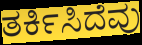
ತರ್ಕಿಸಿದೆವು